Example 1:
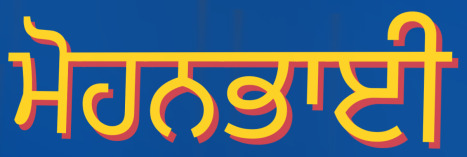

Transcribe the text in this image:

ਮੋਹਨਭਾਈ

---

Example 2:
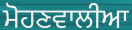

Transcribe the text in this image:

ਮੋਹਣਵਾਲੀਆ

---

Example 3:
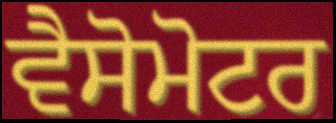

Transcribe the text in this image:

ਵੈਸੋਮੋਟਰ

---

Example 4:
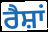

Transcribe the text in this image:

ਰੈਸ਼ਾਂ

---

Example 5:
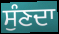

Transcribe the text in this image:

ਸੁੰਣਦਾ